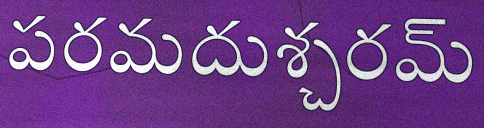
పరమదుశ్చరమ్